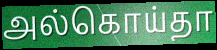
அல்கொய்தா